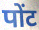
पोंट